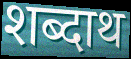
शब्दाथ